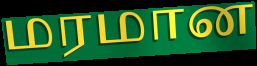
மரமான